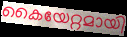
കൈയേറ്റമായി